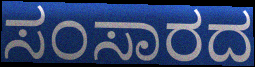
ಸಂಸಾರದ